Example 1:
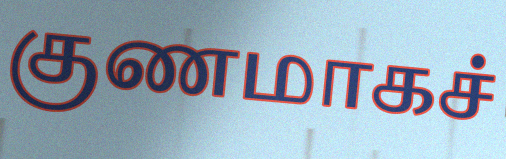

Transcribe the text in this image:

குணமாகச்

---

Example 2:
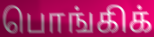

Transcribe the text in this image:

பொங்கிக்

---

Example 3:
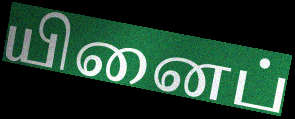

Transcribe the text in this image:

யினைப்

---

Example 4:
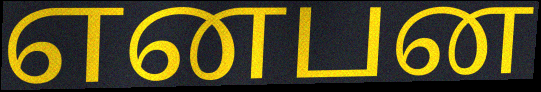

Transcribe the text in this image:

எனபன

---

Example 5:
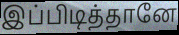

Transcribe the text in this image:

இப்பிடித்தானே